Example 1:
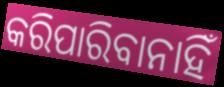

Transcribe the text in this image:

କରିପାରିବାନାହିଁ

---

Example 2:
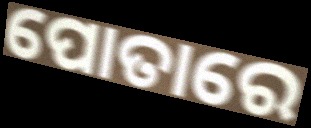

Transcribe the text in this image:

ପୋତାରେ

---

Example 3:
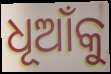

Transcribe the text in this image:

ଧୂଆଁକୁ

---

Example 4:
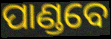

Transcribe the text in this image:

ପାଣ୍ଡବେ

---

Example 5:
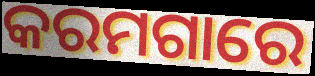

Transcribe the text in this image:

କରମଗାରେ